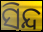
ସିନ୍ଦ